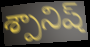
శ్పానిష్